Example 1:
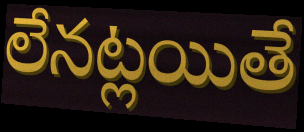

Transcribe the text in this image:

లేనట్లయితే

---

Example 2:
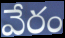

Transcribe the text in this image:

వేరం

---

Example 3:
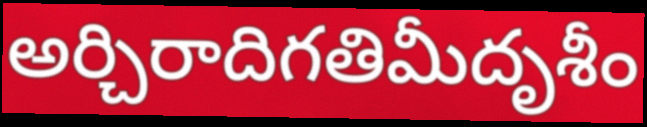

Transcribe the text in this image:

అర్చిరాదిగతిమీదృశీం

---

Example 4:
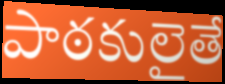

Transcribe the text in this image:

పాఠకులైతే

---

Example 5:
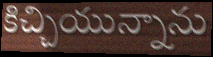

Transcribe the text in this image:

కిచ్చియున్నాను